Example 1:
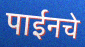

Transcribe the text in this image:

पाईनचे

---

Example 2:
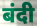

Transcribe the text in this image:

बंदी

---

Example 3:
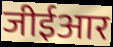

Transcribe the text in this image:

जीईआर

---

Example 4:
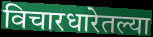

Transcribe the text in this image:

विचारधारेतल्या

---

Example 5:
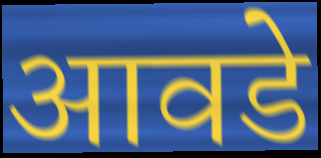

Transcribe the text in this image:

आवडे